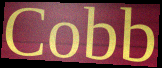
Cobb